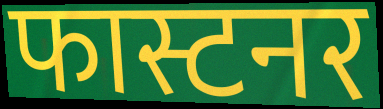
फास्टनर